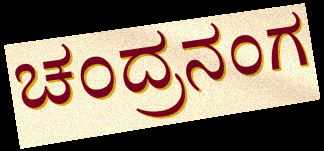
ಚಂದ್ರನಂಗ